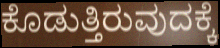
ಕೊಡುತ್ತಿರುವುದಕ್ಕೆ